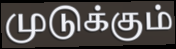
முடுக்கும்